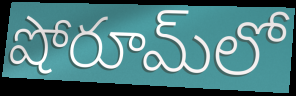
షోరూమ్‌లో